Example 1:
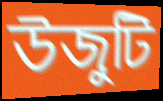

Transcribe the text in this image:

উজুটি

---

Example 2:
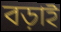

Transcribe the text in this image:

বড়াই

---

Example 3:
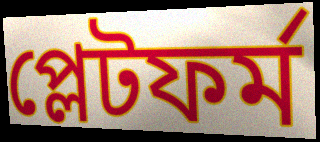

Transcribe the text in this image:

প্লেটফৰ্ম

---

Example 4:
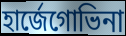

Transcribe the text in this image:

হাৰ্জেগোভিনা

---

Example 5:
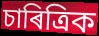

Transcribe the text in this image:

চাৰিত্ৰিক